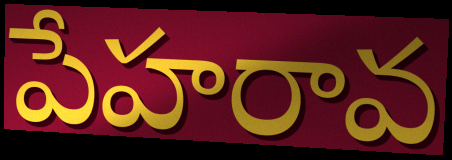
పేహరావ